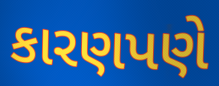
કારણપણે